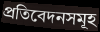
প্ৰতিবেদনসমূহ